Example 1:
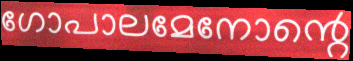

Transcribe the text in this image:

ഗോപാലമേനോന്റെ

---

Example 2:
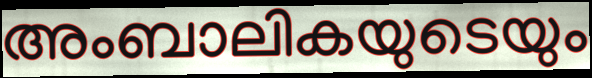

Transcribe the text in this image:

അംബാലികയുടെയും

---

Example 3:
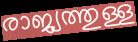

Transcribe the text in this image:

രാജ്യത്തുള്ള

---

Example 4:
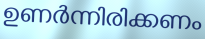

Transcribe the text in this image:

ഉണർന്നിരിക്കണം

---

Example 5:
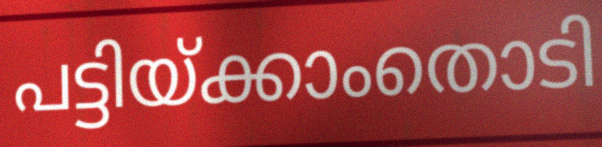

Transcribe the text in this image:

പട്ടിയ്ക്കാംതൊടി